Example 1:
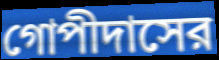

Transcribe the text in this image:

গোপীদাসের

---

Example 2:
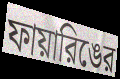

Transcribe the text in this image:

ফায়ারিঙের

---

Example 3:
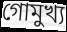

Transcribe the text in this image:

গোমুখ্য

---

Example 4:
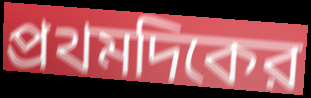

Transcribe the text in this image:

প্রথমদিকের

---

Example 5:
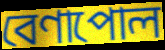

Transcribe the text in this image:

বেণাপোল